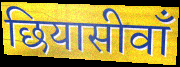
छियासीवाँ